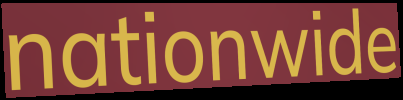
nationwide